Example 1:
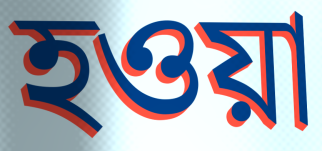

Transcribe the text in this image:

হওয়া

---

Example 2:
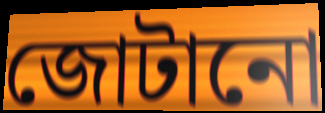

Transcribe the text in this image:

জোটানো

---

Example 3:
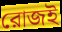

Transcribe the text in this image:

রোজই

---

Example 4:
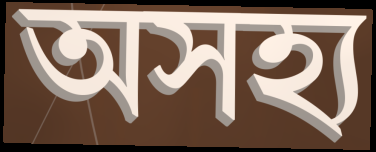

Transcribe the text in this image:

অসহ্য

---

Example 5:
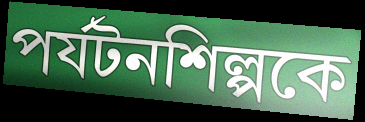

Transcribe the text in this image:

পর্যটনশিল্পকে